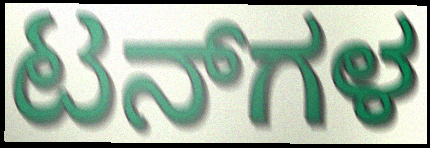
ಟನ್‌ಗಳ